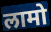
लामो